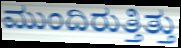
ಮುಂದಿರುತ್ತಿತ್ತು